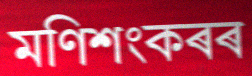
মণিশংকৰৰ